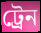
ট্রেন